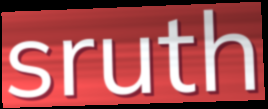
sruth